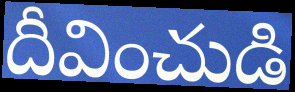
దీవించుడి